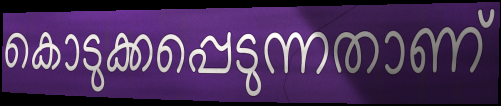
കൊടുക്കപ്പെടുന്നതാണ്